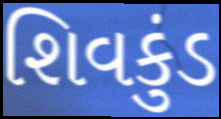
શિવકુંડ